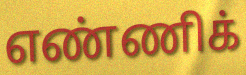
எண்ணிக்